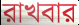
রাখবার